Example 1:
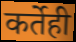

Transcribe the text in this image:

कर्तेही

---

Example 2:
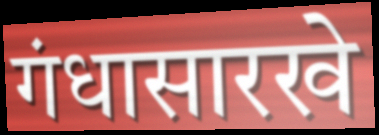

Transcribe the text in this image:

गंधासारखे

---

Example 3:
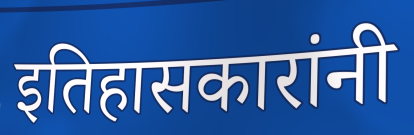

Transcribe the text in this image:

इतिहासकारांनी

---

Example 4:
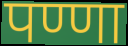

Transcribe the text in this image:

पण्णा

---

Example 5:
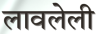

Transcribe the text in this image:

लावलेली